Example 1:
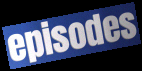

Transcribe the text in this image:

episodes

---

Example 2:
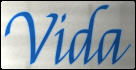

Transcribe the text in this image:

Vida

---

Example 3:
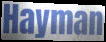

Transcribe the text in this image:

Hayman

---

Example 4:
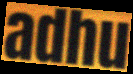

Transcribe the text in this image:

adhu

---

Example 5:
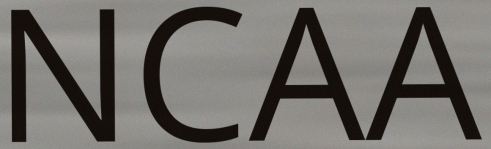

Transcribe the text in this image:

NCAA